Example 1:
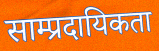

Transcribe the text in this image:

साम्प्रदायिकता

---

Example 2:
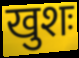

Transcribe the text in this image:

खुशः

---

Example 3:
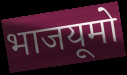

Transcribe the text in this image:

भाजयूमो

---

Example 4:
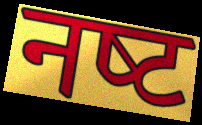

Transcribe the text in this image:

नष्‍ट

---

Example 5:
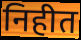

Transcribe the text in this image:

निहीत